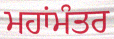
ਮਹਾਂਮੰਤਰ